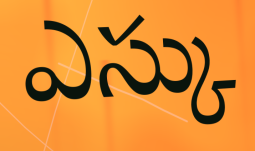
ఎస్కు